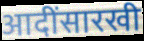
आदींसारखी